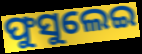
ଫୁସୁଲେଇ